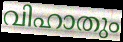
വിഹാതും